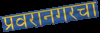
प्रवरानगरचा